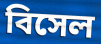
বিসেল